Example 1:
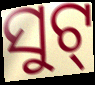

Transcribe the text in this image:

ସୁଟ୍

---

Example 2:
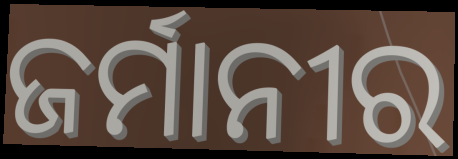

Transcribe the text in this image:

ଜର୍ମାନୀର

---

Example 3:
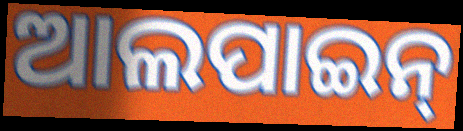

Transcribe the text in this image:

ଆଲପାଇନ୍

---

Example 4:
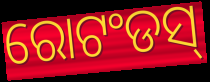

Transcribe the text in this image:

ରୋଟଂଡସ୍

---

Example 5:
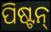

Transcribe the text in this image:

ପିଷ୍ଟନ୍